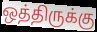
ஒத்திருக்கு